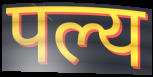
पल्य